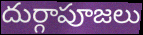
దుర్గాపూజలు